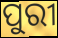
ପୁରୀ